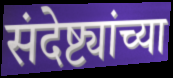
संदेष्ट्यांच्या